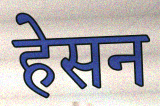
हेसन